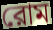
রোম